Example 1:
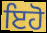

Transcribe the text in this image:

ਇਹੋ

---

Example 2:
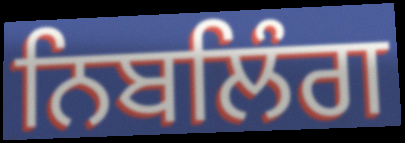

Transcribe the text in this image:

ਨਿਬਲਿੰਗ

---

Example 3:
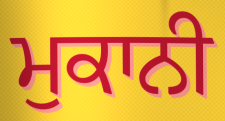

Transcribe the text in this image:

ਮੁਕਾਨੀ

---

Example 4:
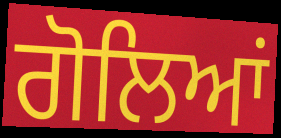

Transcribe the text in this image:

ਗੋਲਿਆਂ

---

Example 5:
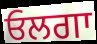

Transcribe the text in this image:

ਓਲਗਾ